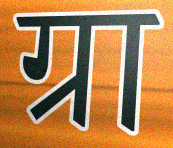
ग्रा